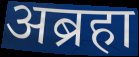
अब्रहा